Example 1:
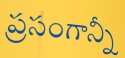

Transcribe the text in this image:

ప్రసంగాన్నీ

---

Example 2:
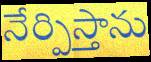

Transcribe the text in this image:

నేర్పిస్తాను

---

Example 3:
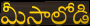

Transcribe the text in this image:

మీసాలోడి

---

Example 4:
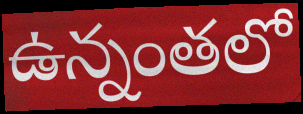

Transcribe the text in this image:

ఉన్నంతలో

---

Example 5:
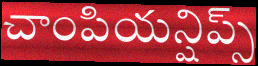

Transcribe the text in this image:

చాంపియన్షిప్స్